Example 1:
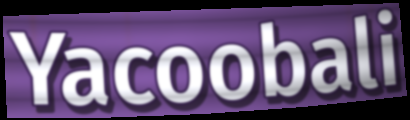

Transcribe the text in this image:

Yacoobali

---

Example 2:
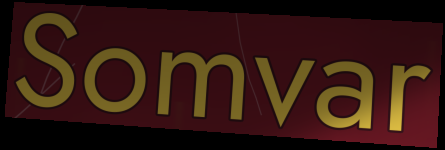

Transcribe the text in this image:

Somvar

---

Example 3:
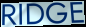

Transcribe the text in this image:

RIDGE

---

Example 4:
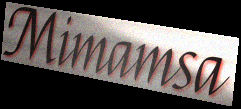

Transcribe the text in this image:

Mimamsa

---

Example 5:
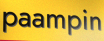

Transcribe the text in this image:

paampin